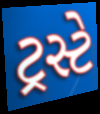
ટ્રસ્ટે